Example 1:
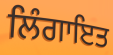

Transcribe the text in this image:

ਲਿੰਗਾਇਤ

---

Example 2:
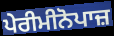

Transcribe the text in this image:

ਪੇਰੀਮੀਨੋਪਾਜ਼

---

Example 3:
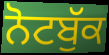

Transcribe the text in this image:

ਨੋਟਬੁੱਕ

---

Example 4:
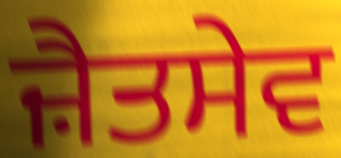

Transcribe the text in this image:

ਜ਼ੈਤਸੇਵ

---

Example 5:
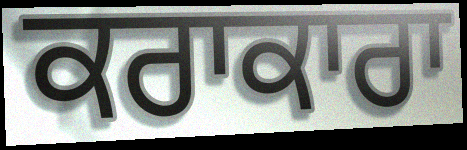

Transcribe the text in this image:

ਕਰਾਕਾਰਾ